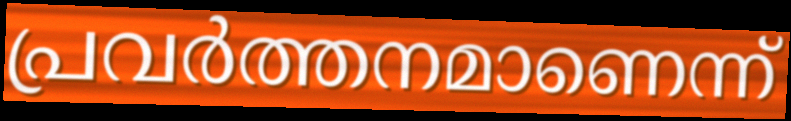
പ്രവർത്തനമാണെന്ന്